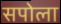
सपोला